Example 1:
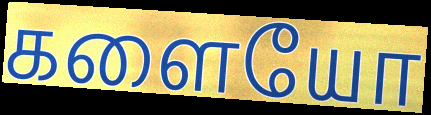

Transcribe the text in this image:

களையோ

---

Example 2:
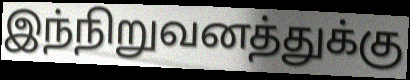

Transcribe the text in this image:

இந்நிறுவனத்துக்கு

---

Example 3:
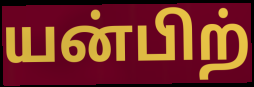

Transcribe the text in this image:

யன்பிற்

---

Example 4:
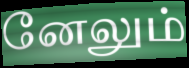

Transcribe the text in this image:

னேலும்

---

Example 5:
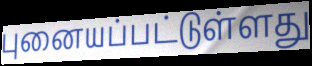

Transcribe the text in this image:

புனையப்பட்டுள்ளது